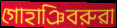
গোহাঞিবৰুৱা